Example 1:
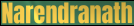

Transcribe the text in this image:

Narendranath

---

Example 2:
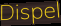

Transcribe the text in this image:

Dispel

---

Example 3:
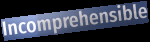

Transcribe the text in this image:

Incomprehensible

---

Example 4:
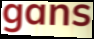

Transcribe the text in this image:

gans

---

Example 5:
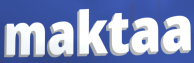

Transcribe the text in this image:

maktaa